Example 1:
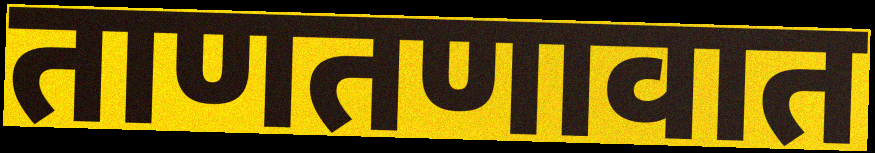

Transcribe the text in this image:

ताणतणावात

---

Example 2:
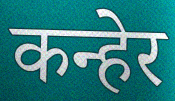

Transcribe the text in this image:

कन्हेर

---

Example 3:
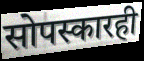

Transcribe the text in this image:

सोपस्कारही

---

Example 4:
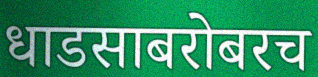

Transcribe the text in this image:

धाडसाबरोबरच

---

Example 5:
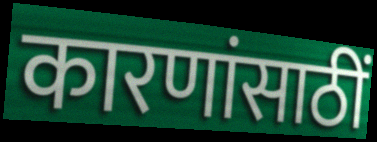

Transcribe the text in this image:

कारणांसाठीं